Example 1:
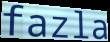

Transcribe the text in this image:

fazla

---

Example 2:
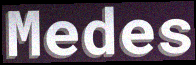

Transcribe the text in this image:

Medes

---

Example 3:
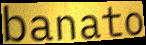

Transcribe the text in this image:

banato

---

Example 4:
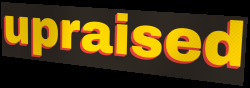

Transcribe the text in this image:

upraised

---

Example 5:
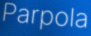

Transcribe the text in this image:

Parpola